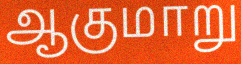
ஆகுமாறு